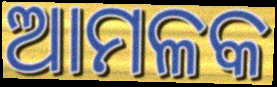
ଆମଳକ